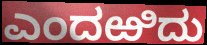
ಎಂದಱಿದು